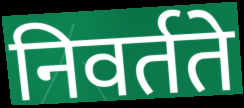
निवर्तते